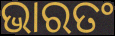
ଭାରତଂ